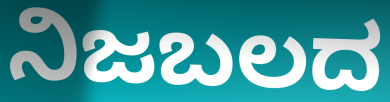
ನಿಜಬಲದ